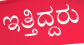
ಇತ್ತಿದ್ದರು